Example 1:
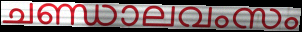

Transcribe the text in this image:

ചണ്ഡാലവംസം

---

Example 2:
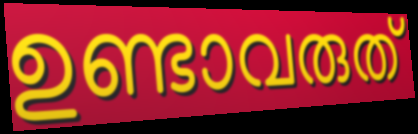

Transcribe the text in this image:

ഉണ്ടാവരുത്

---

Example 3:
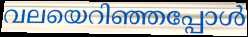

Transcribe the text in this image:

വലയെറിഞ്ഞപ്പോൾ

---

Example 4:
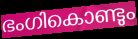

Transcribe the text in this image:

ഭംഗികൊണ്ടും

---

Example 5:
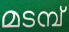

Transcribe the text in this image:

മടമ്പ്